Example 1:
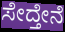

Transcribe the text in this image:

ಸೇದ್ತೇನೆ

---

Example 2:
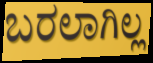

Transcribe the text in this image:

ಬರಲಾಗಿಲ್ಲ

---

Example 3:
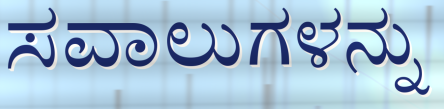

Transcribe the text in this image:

ಸವಾಲುಗಳನ್ನು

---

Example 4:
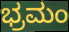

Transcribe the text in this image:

ಭ್ರಮಂ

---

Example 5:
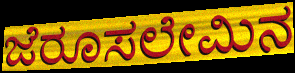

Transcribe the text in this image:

ಜೆರೂಸಲೇಮಿನ